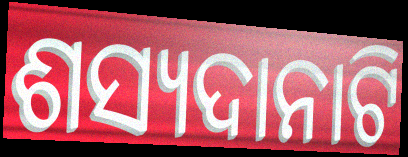
ଶସ୍ୟଦାନାଟି